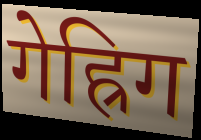
गेह्रिग